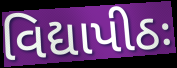
વિદ્યાપીઠઃ